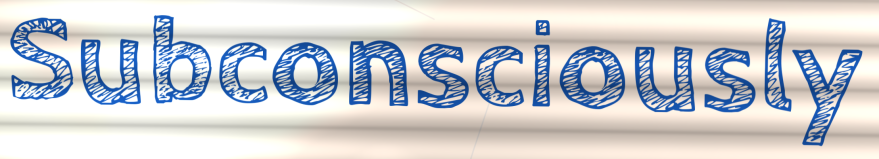
Subconsciously